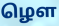
ழௌ